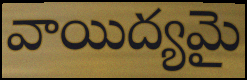
వాయిద్యమై